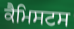
ਕੈਮਿਸਟਸ